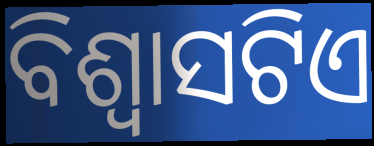
ବିଶ୍ଵାସଟିଏ